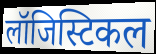
लॉजिस्टिकल